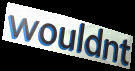
wouldnt